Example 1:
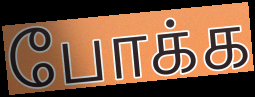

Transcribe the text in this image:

போக்க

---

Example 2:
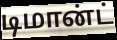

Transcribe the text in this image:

டிமான்ட்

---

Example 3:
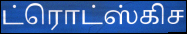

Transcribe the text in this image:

ட்ரொட்ஸ்கிச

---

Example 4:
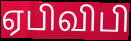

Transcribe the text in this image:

ஏபிவிபி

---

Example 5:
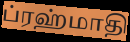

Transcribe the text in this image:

ப்ரஹ்மாதி